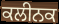
ਕਲੀਨਕ